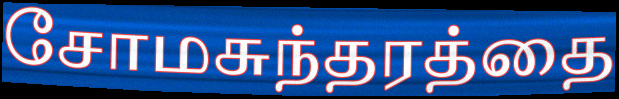
சோமசுந்தரத்தை